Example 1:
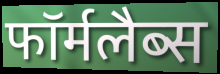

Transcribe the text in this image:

फॉर्मलैब्स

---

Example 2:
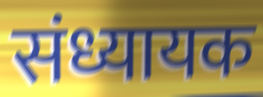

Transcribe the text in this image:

संध्यायक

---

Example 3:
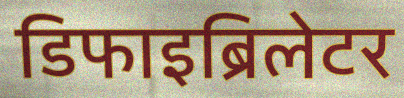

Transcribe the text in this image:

डिफाइब्रिलेटर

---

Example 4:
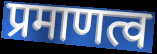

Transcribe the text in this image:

प्रमाणत्व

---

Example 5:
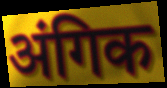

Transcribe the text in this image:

अंगिक